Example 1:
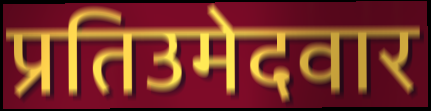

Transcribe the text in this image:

प्रतिउमेदवार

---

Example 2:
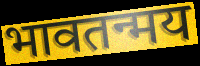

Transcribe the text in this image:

भावतन्मय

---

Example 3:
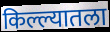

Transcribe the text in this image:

किल्ल्यातला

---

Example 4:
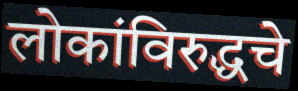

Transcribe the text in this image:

लोकांविरुद्धचे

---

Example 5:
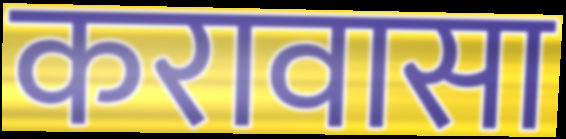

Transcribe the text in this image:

करावासा